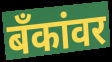
बँकांवर